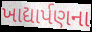
ખાદ્યાર્પણના